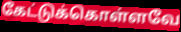
கேட்டுக்கொள்ளவே